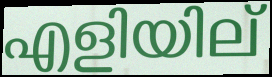
എളിയില്